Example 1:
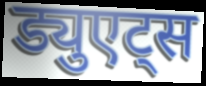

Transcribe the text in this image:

ड्युएट्स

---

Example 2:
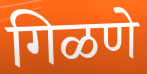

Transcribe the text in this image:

गिळणे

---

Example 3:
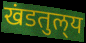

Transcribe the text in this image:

खंडतुल्य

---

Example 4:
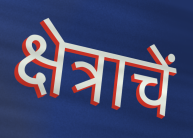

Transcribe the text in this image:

क्षेत्राचें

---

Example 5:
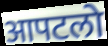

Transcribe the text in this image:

आपटलो